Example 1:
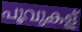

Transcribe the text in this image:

പൂവുകള്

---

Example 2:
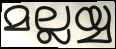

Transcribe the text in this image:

മല്ലയ്യ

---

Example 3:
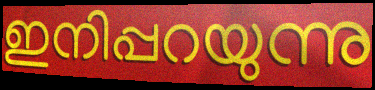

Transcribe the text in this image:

ഇനിപ്പറയുന്നു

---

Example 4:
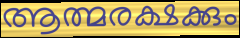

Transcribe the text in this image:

ആത്മരക്ഷക്കും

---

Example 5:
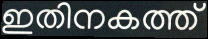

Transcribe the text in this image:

ഇതിനകത്ത്